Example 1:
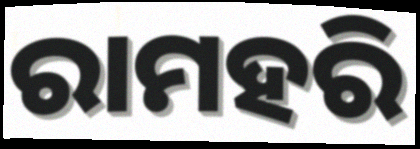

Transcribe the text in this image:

ରାମହରି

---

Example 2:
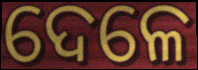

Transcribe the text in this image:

ଦେଳେ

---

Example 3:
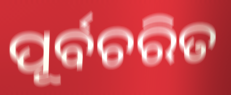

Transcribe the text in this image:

ପୂର୍ବଚରିତ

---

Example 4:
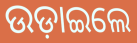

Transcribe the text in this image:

ଉଡ଼ାଇଲେ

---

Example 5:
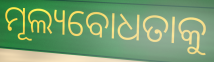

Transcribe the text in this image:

ମୂଲ୍ୟବୋଧତାକୁ